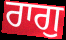
ਰਾਗੁ